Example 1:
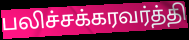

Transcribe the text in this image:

பலிச்சக்கரவர்த்தி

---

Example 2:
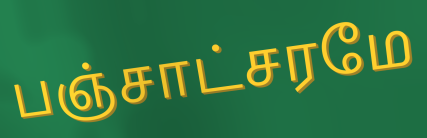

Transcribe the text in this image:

பஞ்சாட்சரமே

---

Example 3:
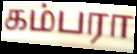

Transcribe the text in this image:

கம்பரா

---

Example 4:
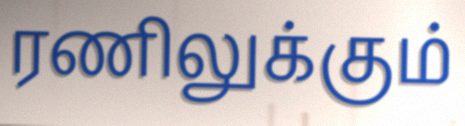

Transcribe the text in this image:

ரணிலுக்கும்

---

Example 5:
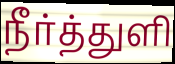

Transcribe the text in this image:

நீர்த்துளி